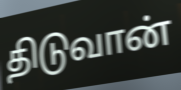
திடுவான்